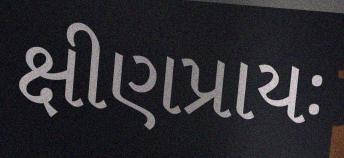
ક્ષીણપ્રાયઃ